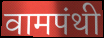
वामपंथी